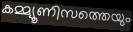
കമ്മ്യൂണിസത്തെയും